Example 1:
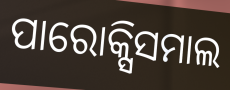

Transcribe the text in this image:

ପାରୋକ୍ସିସମାଲ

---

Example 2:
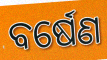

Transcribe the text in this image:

ବର୍ଷେଣ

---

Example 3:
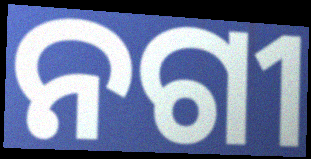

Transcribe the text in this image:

ନଗୀ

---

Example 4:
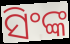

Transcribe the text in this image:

ସିଂଙ୍କ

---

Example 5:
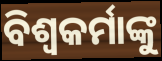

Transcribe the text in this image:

ବିଶ୍ଵକର୍ମାଙ୍କୁ